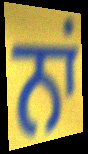
ਨਾਂ